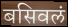
बसिवलं